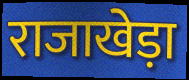
राजाखेड़ा